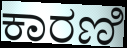
ಕಾರಣಿ